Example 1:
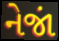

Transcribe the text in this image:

નેજાં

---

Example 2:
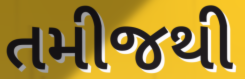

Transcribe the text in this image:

તમીજથી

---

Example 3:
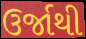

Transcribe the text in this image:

ઉર્જાથી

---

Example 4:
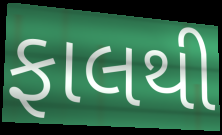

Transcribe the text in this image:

ફાલથી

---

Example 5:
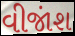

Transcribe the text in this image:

વીજાંશ